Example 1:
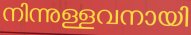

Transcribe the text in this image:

നിന്നുള്ളവനായി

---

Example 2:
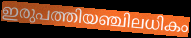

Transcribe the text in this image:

ഇരുപത്തിയഞ്ചിലധികം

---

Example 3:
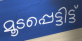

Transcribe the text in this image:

മൂടപ്പെട്ടിട്ട്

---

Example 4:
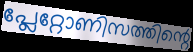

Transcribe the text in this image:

പ്ലേറ്റോണിസത്തിന്റെ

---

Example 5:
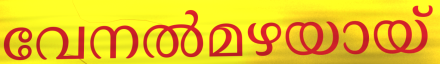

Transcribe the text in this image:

വേനൽമഴയായ്